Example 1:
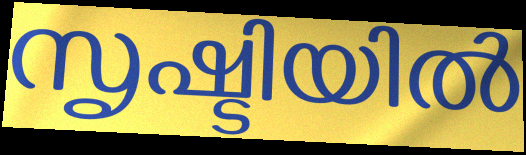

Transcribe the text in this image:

സൃഷ്ടിയിൽ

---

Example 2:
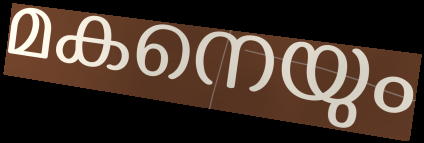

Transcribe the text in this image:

മകനെയും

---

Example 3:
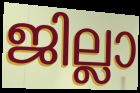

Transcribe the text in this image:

ജില്ലാ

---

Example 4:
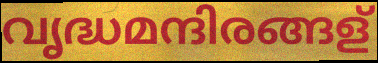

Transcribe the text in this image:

വൃദ്ധമന്ദിരങ്ങള്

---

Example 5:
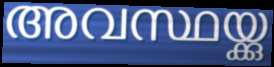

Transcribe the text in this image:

അവസ്ഥയ്ക്കു